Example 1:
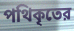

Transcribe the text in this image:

পথিকৃতের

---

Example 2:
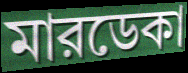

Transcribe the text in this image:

মারডেকা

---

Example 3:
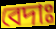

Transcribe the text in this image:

বেদাঃ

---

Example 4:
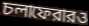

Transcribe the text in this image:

চলাফেরারও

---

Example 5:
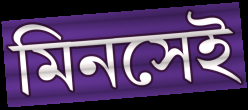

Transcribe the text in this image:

মিনসেই